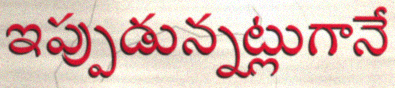
ఇప్పుడున్నట్లుగానే